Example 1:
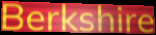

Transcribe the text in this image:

Berkshire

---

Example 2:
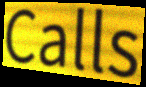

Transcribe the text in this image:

Calls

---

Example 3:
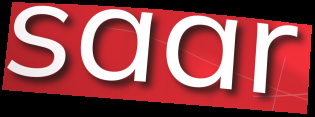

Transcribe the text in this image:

saar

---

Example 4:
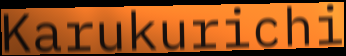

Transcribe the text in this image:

Karukurichi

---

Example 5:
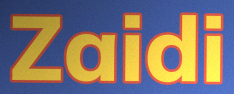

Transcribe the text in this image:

Zaidi